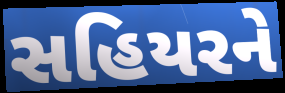
સહિયરને